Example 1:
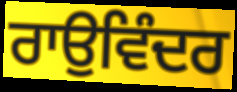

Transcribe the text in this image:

ਰਾਉਵਿੰਦਰ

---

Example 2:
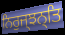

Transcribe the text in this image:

ਨਿਰੁਜ੍ਝਨ੍ਤਿ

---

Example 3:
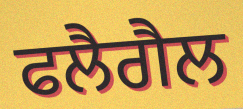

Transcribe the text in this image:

ਫਲੈਗੈਲ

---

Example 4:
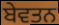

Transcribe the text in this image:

ਬੇਵਤਨ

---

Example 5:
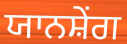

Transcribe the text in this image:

ਯਾਨਸ਼ੇਂਗ